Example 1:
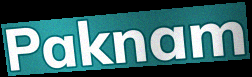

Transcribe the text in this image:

Paknam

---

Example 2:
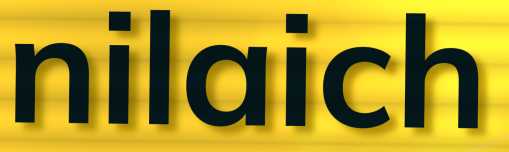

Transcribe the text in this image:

nilaich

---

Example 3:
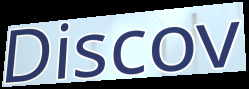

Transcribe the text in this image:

Discov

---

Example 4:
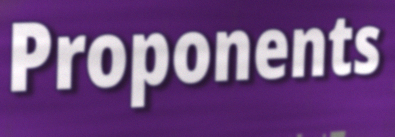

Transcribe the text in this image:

Proponents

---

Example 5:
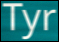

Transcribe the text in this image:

Tyr